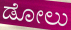
ಡೋಲು